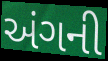
અંગની